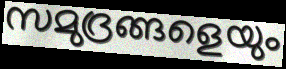
സമുദ്രങ്ങളെയും